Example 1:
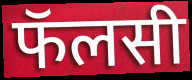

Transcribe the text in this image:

फॅलसी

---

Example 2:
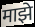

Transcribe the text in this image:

माझे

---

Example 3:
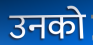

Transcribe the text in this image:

उनको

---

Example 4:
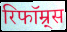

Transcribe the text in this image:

रिफॉम्र्स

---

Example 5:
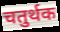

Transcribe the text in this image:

चतुर्थक